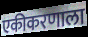
एकीकरणाला